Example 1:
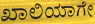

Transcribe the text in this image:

ಖಾಲಿಯಾಗೇ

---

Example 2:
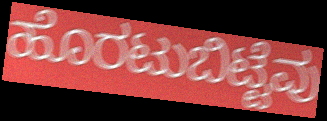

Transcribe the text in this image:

ಹೊರಟುಬಿಟ್ಟೆವು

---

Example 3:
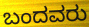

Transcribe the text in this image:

ಬಂದವರು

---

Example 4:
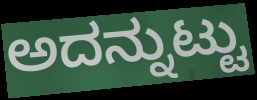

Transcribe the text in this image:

ಅದನ್ನುಟ್ಟು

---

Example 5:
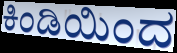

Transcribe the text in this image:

ಕಿಂಡಿಯಿಂದ